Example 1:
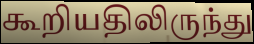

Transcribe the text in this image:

கூறியதிலிருந்து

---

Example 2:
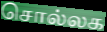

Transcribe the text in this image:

சொல்லக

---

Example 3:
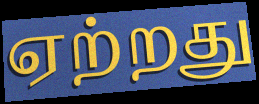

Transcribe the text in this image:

ஏற்றது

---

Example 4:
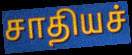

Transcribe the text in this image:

சாதியச்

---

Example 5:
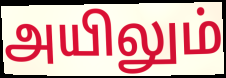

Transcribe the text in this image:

அயிலும்